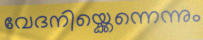
വേദനിയ്ക്കെന്നെന്നും